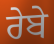
ਰੇਬੇ